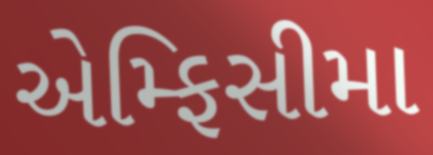
એમ્ફિસીમા